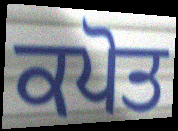
ਕਪੋਤ